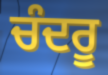
ਚੰਦਰੂ